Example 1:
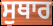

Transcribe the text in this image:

ਸੁਥਾਰ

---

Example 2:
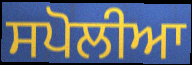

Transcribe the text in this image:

ਸਪੋਲੀਆ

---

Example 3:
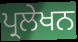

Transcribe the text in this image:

ਪ੍ਰਲੇਖਨ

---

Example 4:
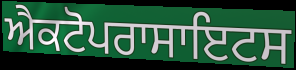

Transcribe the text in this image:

ਐਕਟੋਪਰਾਸਾਇਟਸ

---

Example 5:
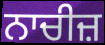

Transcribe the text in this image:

ਨਾਚੀਜ਼